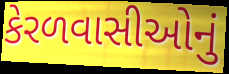
કેરળવાસીઓનું